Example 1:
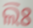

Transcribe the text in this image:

ଲିଃ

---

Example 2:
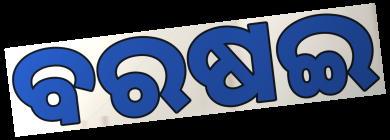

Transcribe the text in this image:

ବରଷଇ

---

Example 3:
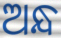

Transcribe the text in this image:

ଅନ୍ଧ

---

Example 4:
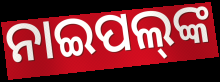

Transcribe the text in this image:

ନାଇପଲ୍‍ଙ୍କ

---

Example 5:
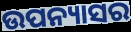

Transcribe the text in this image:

ଉପନ୍ୟାସର